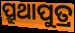
ପ୍ରୁଥାପୁତ୍ର